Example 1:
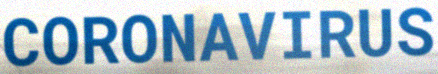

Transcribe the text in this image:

CORONAVIRUS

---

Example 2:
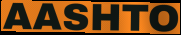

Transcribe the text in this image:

AASHTO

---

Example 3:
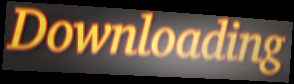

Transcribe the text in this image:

Downloading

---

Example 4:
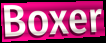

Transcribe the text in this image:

Boxer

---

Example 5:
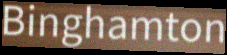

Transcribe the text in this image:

Binghamton